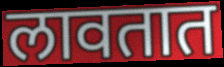
लावतात